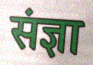
संज्ञा